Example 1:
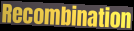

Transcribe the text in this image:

Recombination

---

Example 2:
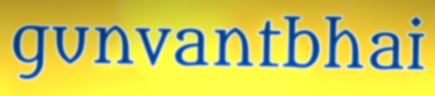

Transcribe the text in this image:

gunvantbhai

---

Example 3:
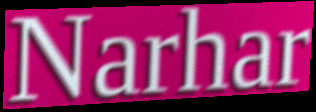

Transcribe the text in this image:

Narhar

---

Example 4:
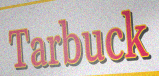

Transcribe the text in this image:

Tarbuck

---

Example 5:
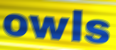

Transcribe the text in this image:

owls